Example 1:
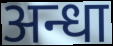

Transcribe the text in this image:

अन्धा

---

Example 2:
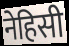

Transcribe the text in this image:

नेहिसी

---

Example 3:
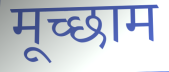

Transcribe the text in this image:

मूच्छाम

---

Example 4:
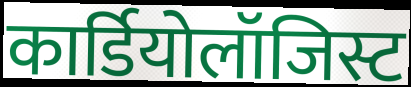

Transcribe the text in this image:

कार्डियोलॉजिस्ट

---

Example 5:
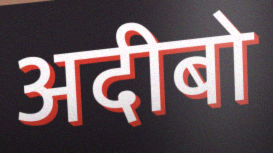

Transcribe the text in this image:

अदीबो